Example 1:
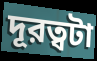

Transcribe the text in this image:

দূরত্বটা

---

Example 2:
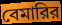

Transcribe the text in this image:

বেমারির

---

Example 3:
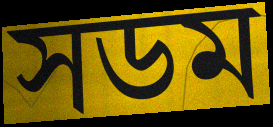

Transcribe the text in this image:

সডম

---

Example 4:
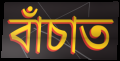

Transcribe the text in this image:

বাঁচাত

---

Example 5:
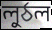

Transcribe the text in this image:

লুঠল